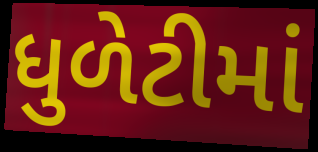
ધુળેટીમાં